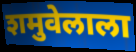
शमुवेलाला